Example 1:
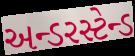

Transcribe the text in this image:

અન્ડરસ્ટેન્ડ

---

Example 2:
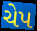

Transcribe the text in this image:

ચેપ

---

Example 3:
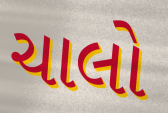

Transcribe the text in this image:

ચાલો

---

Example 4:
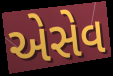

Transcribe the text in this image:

એસેવ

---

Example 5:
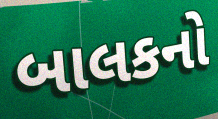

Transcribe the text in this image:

બાલકનો